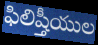
ఫిలిష్తీయుల